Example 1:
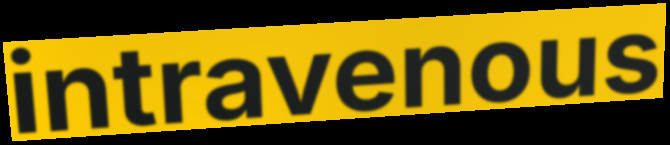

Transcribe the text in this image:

intravenous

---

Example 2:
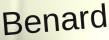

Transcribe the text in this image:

Benard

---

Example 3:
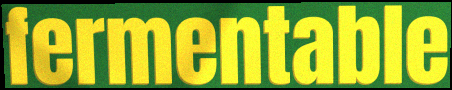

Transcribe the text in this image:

fermentable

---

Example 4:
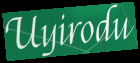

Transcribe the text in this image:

Uyirodu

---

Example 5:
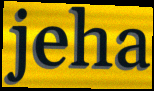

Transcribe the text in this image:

jeha